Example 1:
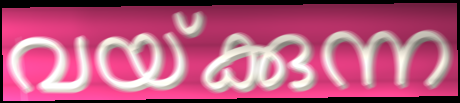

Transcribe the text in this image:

വയ്‌ക്കുന്ന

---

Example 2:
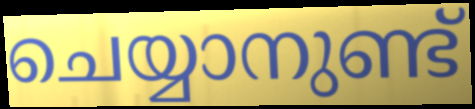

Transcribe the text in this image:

ചെയ്യാനുണ്ട്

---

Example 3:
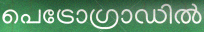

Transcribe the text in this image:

പെട്രോഗ്രാഡിൽ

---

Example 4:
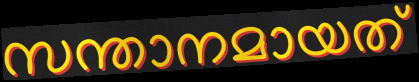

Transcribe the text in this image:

സന്താനമായത്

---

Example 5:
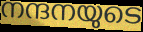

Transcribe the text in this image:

നന്ദനയുടെ